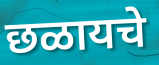
छळायचे